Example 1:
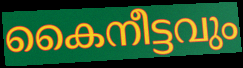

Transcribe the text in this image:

കൈനീട്ടവും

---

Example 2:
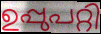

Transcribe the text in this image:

ഉപ്പുപറ്റി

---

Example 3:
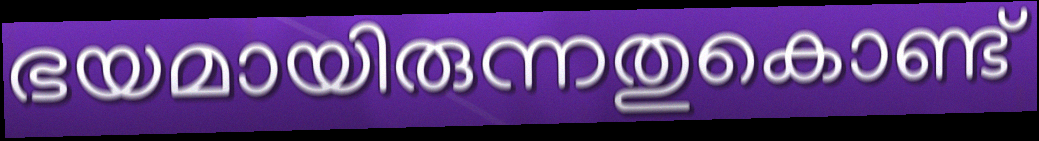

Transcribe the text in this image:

ഭയമായിരുന്നതുകൊണ്ട്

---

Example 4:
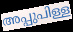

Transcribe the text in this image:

അപ്പുപിള്ള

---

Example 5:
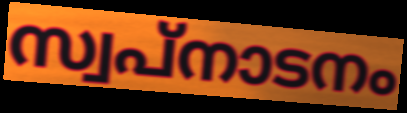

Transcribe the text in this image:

സ്വപ്നാടനം